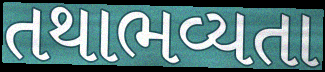
તથાભવ્યતા